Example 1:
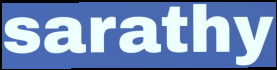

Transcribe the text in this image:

sarathy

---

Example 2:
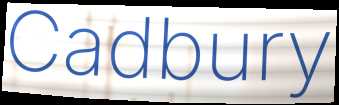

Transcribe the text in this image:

Cadbury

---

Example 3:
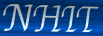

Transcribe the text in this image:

NHIT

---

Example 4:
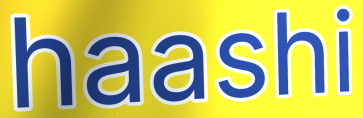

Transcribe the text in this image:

haashi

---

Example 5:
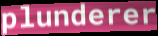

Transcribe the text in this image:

plunderer